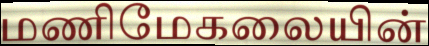
மணிமேகலையின்